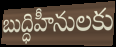
బుద్ధిహీనులకు